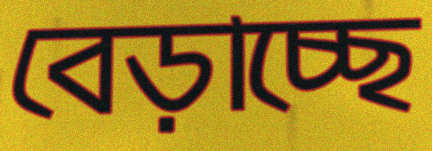
বেড়াচ্ছে